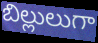
బిల్లులుగా